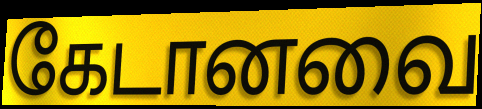
கேடானவை